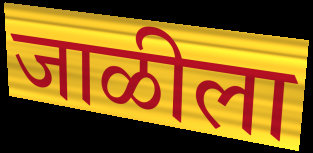
जाळीला